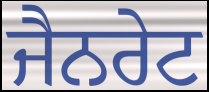
ਜੈਨਰੇਟ